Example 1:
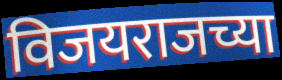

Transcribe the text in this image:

विजयराजच्या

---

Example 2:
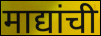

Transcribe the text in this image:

माद्यांची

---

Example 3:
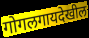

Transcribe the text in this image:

गोगलगायदेखील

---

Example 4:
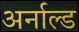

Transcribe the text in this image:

अर्नाल्ड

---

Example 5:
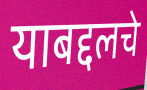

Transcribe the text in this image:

याबद्दलचे